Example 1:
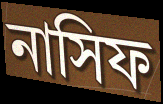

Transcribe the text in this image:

নাসিফ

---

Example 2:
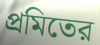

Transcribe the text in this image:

প্রমিতের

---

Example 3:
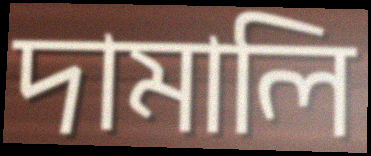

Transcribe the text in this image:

দামালি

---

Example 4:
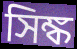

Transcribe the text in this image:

সিঙ্ক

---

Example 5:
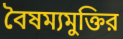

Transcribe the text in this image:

বৈষম্যমুক্তির